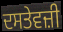
ਦਸਤੇਵਜ਼ੀ